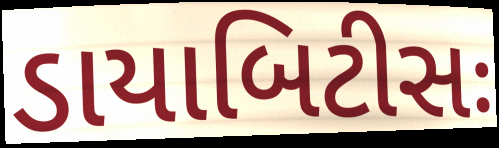
ડાયાબિટીસઃ